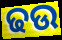
ଢଉ